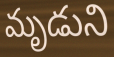
మృడుని